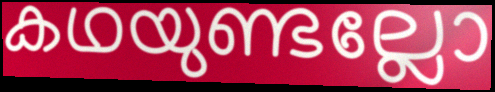
കഥയുണ്ടല്ലോ